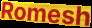
Romesh